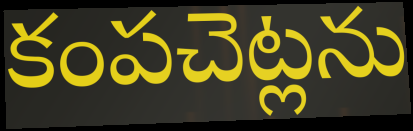
కంపచెట్లను